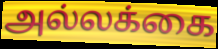
அல்லக்கை